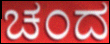
ಚಂದ